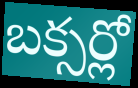
బక్సర్లో